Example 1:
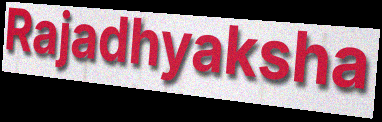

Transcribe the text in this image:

Rajadhyaksha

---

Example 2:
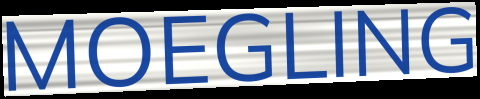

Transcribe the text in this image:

MOEGLING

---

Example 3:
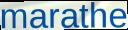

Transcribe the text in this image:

marathe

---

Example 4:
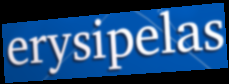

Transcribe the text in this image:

erysipelas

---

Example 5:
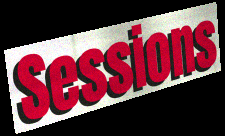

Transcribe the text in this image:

Sessions